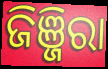
ଜିଞ୍ଜିରା